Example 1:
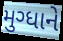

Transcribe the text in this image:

મુગ્ધાને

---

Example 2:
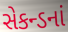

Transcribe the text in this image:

સેકન્ડનાં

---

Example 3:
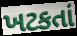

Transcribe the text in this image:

ખટકતાં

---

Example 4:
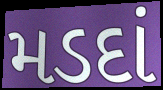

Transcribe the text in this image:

મડદાં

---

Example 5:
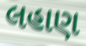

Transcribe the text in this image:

લહાણ